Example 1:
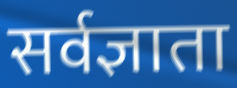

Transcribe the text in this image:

सर्वज्ञाता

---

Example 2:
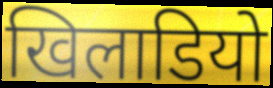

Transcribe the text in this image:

खिलाडियो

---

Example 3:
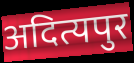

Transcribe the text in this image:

अदित्यपुर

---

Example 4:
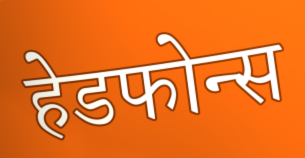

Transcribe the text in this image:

हेडफोन्स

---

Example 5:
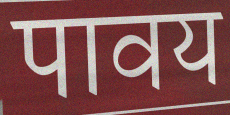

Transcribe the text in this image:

पावय